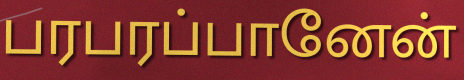
பரபரப்பானேன்